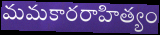
మమకారరాహిత్యం